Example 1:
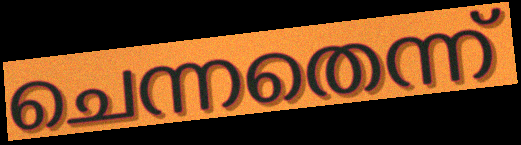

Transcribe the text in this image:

ചെന്നതെന്ന്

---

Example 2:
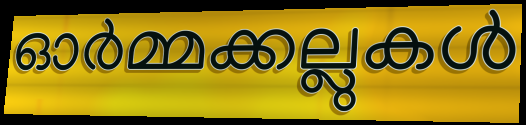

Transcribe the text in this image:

ഓർമ്മക്കല്ലുകൾ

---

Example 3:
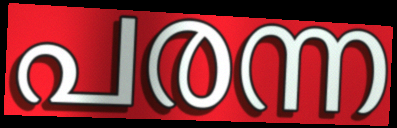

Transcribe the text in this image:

പരന്ന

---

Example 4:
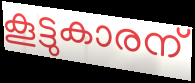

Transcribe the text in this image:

കൂട്ടുകാരന്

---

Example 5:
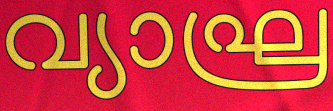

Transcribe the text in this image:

വ്യാഘ്ര